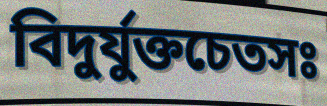
বিদুর্যুক্তচেতসঃ